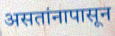
असतांनापासून